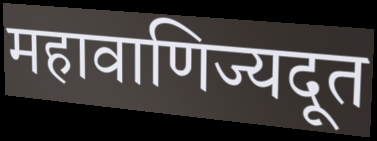
महावाणिज्यदूत